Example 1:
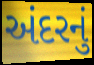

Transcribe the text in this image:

અંદરનું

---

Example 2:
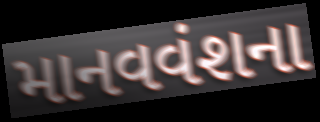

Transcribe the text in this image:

માનવવંશના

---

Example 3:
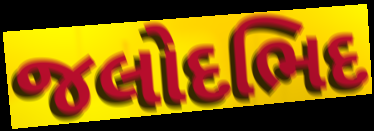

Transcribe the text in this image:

જલોદભિદ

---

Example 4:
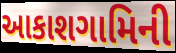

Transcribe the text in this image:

આકાશગામિની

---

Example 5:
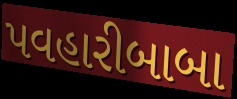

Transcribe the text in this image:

પવહારીબાબા